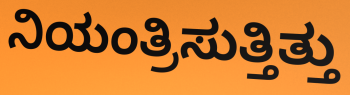
ನಿಯಂತ್ರಿಸುತ್ತಿತ್ತು